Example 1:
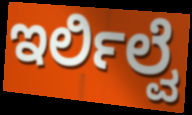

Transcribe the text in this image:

ಇರ್ಲಿಲ್ವೆ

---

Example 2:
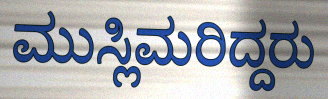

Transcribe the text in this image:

ಮುಸ್ಲಿಮರಿದ್ದರು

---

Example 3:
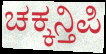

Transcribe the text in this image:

ಚಕ್ಕನ್ತಿಪಿ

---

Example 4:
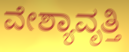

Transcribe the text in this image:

ವೇಶ್ಯಾವೃತ್ತಿ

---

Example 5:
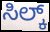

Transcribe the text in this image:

ಸಿಲ್ಕ್